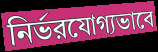
নির্ভরযোগ্যভাবে